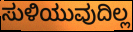
ಸುಳಿಯುವುದಿಲ್ಲ